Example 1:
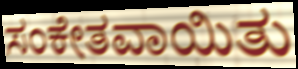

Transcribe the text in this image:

ಸಂಕೇತವಾಯಿತು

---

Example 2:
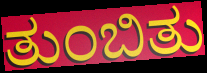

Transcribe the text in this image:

ತುಂಬಿತು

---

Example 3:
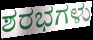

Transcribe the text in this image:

ಶರಭಗಳು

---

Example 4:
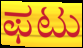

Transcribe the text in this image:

ಫಟು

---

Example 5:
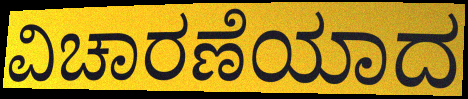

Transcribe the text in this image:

ವಿಚಾರಣೆಯಾದ